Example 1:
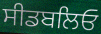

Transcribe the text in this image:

ਸੀਡਬਲਿਓ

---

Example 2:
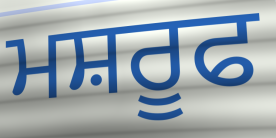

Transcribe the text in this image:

ਮਸ਼ਰੂਫ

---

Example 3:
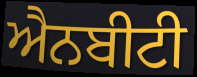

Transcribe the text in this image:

ਐਨਬੀਟੀ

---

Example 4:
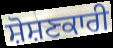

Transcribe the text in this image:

ਸ਼ੋਸ਼ਣਕਾਰੀ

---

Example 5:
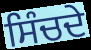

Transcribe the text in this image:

ਸਿੰਚਦੇ